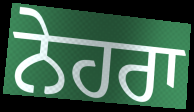
ਨੇਹਰਾ